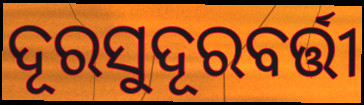
ଦୂରସୁଦୂରବର୍ତ୍ତୀ